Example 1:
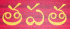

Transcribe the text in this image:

తపత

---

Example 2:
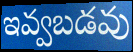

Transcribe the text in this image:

ఇవ్వబడవు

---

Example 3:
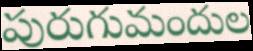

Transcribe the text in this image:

పురుగుమందుల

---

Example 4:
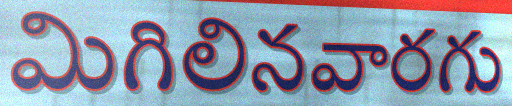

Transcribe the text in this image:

మిగిలినవారగు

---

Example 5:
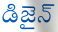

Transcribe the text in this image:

డిజైన్